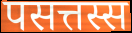
पसत्तस्स